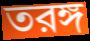
তরঙ্গ